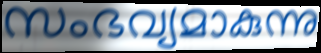
സംഭവ്യമാകുന്നു